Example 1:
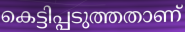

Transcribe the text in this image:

കെട്ടിപ്പടുത്തതാണ്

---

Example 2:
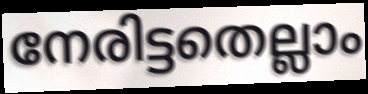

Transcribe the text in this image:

നേരിട്ടതെല്ലാം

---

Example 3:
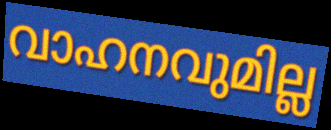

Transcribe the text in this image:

വാഹനവുമില്ല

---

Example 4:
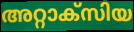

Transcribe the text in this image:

അറ്റാക്സിയ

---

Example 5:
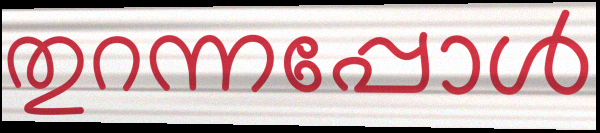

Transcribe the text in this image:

തുറന്നപ്പോൾ